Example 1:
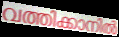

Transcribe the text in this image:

വത്തിക്കാനിൽ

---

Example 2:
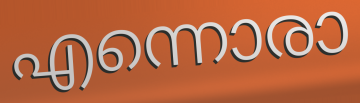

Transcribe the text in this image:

എന്നൊരാ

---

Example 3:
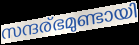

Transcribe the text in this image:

സന്ദര്ഭമുണ്ടായി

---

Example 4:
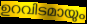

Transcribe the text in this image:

ഉറവിടമായും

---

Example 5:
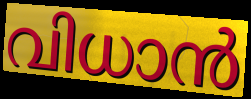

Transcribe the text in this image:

വിധാൻ